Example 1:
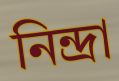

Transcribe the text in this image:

নিন্দ্ৰা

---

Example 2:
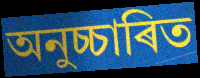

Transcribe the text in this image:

অনুচ্চাৰিত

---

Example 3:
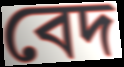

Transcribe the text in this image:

বেদ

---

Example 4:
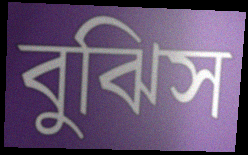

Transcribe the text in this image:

বুঝিস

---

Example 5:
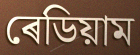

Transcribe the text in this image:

ৰেডিয়াম